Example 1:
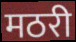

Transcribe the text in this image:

मठरी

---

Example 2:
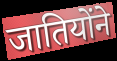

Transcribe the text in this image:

जातियोंने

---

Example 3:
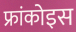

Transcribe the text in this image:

फ्रांकोइस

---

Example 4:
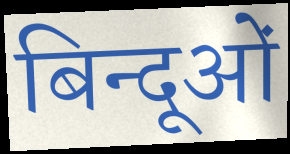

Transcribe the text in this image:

बिन्दूओं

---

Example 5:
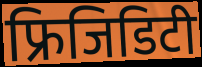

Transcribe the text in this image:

फ्रिजिडिटी